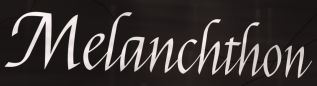
Melanchthon